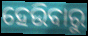
ହେଉିବାରୁ